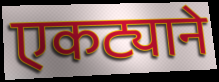
एकट्याने